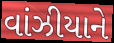
વાંઝીયાને